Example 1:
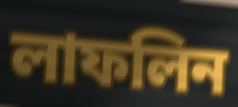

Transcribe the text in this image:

লাফলিন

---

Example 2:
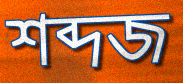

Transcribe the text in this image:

শব্দজ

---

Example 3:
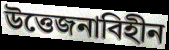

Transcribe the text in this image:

উত্তেজনাবিহীন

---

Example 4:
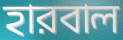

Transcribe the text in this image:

হারবাল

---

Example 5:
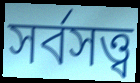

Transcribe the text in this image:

সর্বসত্ত্ব